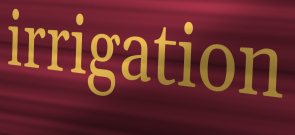
irrigation